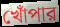
খোঁপার